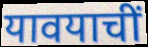
यावयाचीं